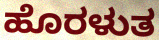
ಹೊರಳುತ